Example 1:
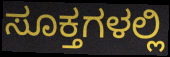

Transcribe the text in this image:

ಸೂಕ್ತಗಳಲ್ಲಿ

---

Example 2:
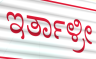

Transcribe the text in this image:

ಇರ್ತಾಳ್ರೀ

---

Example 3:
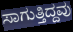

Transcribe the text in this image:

ಸಾಗುತ್ತಿದ್ದವು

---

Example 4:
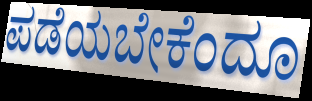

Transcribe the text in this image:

ಪಡೆಯಬೇಕೆಂದೂ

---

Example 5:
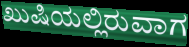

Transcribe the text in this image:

ಖುಷಿಯಲ್ಲಿರುವಾಗ